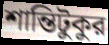
শান্তিটুকুর